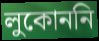
লুকোননি